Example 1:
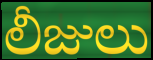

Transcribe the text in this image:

లీజులు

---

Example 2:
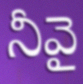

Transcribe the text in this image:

నీవై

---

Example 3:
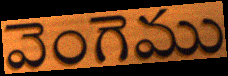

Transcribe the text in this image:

వెంగెము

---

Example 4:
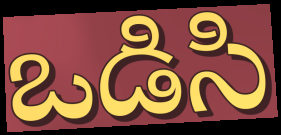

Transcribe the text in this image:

ఒడిసి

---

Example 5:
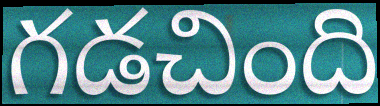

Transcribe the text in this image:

గడచింది